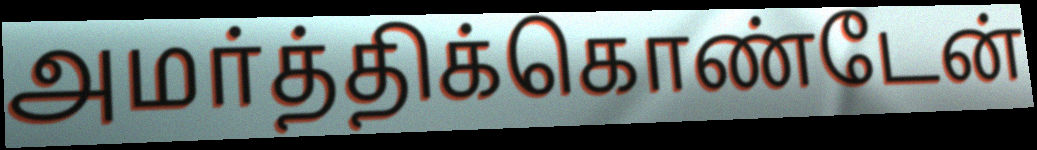
அமர்த்திக்கொண்டேன்